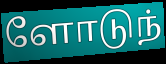
ளோடுந்